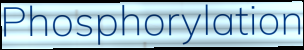
Phosphorylation